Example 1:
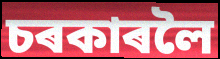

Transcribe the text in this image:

চৰকাৰলৈ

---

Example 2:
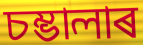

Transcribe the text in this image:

চম্ভালাৰ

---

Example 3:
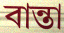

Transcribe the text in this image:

বান্তা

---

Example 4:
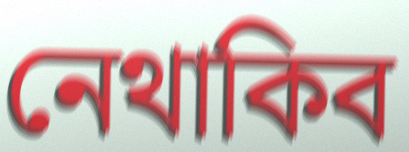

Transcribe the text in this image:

নেথাকিব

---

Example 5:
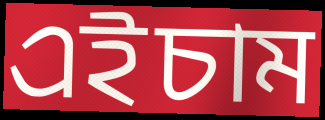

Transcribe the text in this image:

এইচাম